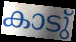
കാടു്